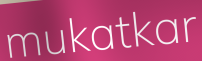
mukatkar